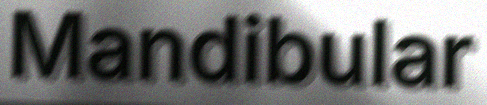
Mandibular